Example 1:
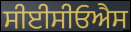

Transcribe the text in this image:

ਸੀਈਸੀਓਐਸ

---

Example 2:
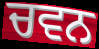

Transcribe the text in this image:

ਚਵਨ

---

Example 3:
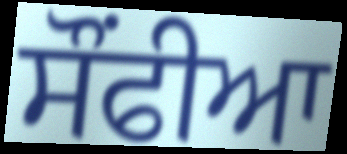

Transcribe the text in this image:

ਸੌਂਫੀਆ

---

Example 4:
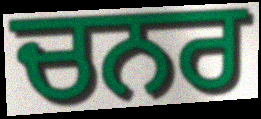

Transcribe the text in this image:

ਚਨਰ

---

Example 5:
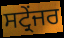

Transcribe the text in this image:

ਸਟ੍ਰੇਂਜਰ